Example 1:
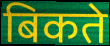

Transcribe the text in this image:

बिकते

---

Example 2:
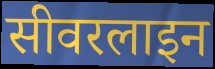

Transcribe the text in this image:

सीवरलाइन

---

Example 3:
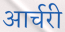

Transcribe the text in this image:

आर्चरी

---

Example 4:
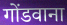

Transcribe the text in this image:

गोंडवाना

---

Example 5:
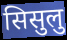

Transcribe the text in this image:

सिसुलु